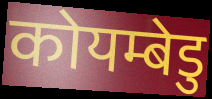
कोयम्बेडु